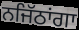
ਨਜਿੱਠਾਂਗਾ